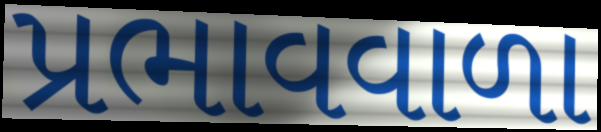
પ્રભાવવાળા